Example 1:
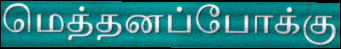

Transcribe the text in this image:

மெத்தனப்போக்கு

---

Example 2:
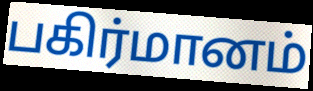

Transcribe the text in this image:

பகிர்மானம்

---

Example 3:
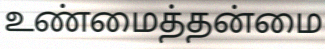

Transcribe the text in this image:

உண்மைத்தன்மை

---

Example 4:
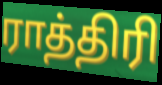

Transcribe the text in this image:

ராத்திரி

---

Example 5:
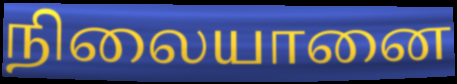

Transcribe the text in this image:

நிலையானை